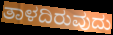
ತಾಳದಿರುವುದು